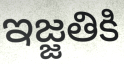
ఇజ్జతికి